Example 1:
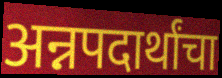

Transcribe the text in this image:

अन्नपदार्थांचा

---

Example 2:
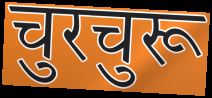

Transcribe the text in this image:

चुरचुरू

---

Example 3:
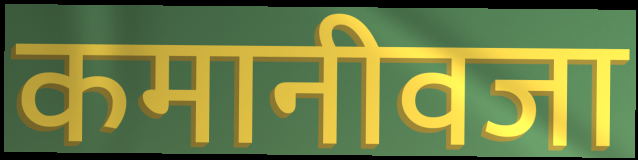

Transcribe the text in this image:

कमानीवजा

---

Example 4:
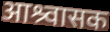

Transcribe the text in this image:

आश्र्वासक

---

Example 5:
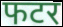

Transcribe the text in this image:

फटर